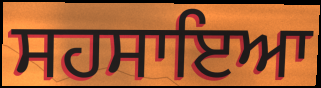
ਸਹਸਾਇਆ